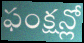
ఫంక్షన్లో